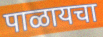
पाळायचा